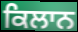
ਕਿਲਾਨ